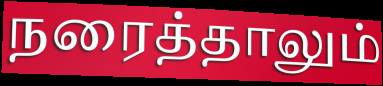
நரைத்தாலும்